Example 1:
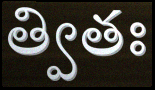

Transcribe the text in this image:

త్వితః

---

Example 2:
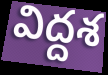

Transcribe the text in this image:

విద్దశ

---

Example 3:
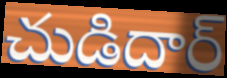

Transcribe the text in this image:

చుడిదార్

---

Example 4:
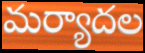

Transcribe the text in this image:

మర్యాదల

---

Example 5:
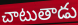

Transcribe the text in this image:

చాటుతాడు